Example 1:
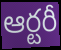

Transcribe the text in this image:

ఆర్టరీ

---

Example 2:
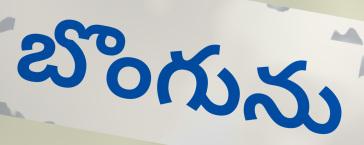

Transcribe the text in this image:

బొంగును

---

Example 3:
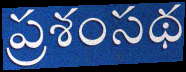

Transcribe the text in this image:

ప్రశంసథ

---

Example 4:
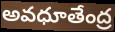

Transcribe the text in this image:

అవధూతేంద్ర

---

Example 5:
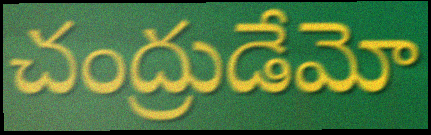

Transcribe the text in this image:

చంద్రుడేమో